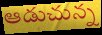
ఆడుచున్న